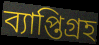
ব্যাপ্তিগ্রহ